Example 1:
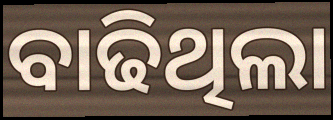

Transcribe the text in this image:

ବାଢିଥିଲା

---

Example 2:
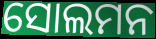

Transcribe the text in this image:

ସୋଲମନ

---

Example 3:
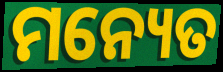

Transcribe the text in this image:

ମନ୍ୟେତ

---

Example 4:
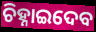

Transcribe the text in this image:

ଚିହ୍ନାଇଦେବ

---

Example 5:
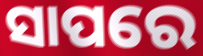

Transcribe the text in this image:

ସାପରେ